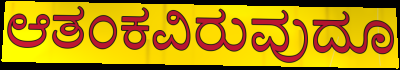
ಆತಂಕವಿರುವುದೂ